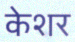
केशर